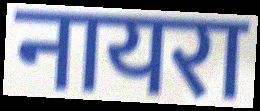
नायरा